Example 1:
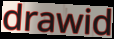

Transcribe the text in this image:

drawid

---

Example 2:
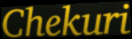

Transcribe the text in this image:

Chekuri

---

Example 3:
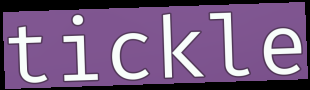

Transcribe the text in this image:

tickle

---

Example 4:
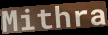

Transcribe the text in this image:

Mithra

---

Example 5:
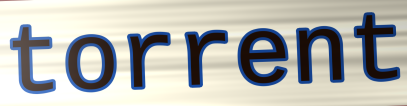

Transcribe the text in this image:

torrent